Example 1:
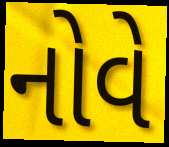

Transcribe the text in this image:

નોવે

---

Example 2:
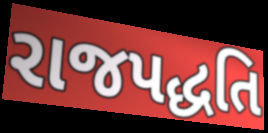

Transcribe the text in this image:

રાજપદ્ધતિ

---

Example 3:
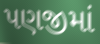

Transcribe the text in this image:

પણજીમાં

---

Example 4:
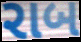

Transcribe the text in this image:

રાબ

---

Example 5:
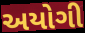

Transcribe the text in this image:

અયોગી